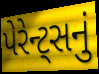
પેરેન્ટ્સનું